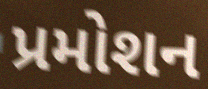
પ્રમોશન